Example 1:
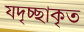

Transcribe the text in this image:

যদৃচ্ছাকৃত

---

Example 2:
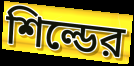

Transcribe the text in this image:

শিল্ডের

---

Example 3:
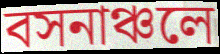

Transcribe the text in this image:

বসনাঞ্চলে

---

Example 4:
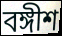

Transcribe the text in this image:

বঙ্গীশ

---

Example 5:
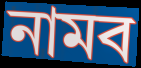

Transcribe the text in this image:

নামব